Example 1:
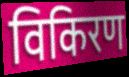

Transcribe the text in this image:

विकिरण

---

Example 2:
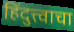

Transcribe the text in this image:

हिंदुत्त्वाचा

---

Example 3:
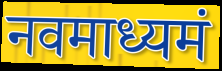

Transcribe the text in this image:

नवमाध्यमं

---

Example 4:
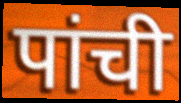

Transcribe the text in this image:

पांची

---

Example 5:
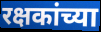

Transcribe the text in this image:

रक्षकांच्या